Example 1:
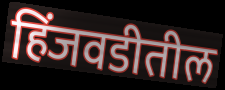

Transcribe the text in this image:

हिंजवडीतील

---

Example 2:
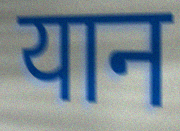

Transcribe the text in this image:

यान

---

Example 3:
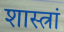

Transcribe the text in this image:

शास्त्रां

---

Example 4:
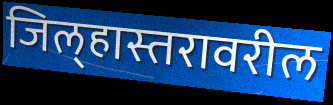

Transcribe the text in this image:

जिल्हास्तरावरील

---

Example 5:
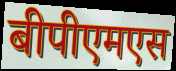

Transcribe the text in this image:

बीपीएमएस